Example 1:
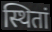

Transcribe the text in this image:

स्थितां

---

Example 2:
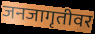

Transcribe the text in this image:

जनजागृतीवर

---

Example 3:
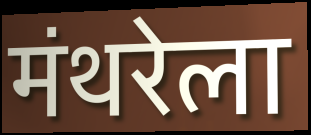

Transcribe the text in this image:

मंथरेला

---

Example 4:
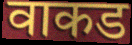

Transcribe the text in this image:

वाकड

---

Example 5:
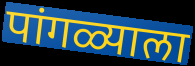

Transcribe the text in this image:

पांगळ्याला